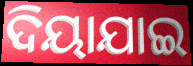
ଦିୟାଯାଇ